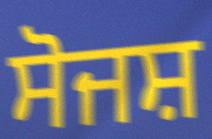
ਸੋਜਸ਼